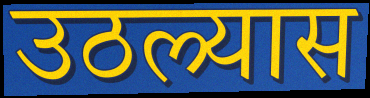
उठल्यास